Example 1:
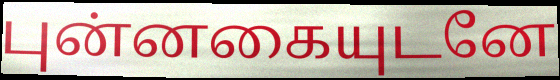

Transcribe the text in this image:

புன்னகையுடனே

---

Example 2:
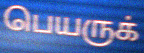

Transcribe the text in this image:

பெயருக்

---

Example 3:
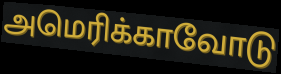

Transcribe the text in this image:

அமெரிக்காவோடு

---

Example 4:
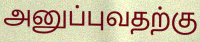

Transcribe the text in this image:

அனுப்புவதற்கு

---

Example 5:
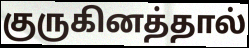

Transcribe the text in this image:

குருகினத்தால்